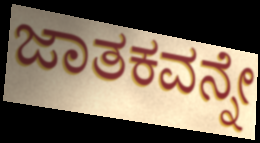
ಜಾತಕವನ್ನೇ